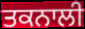
ਤਕਨਾਲੀ